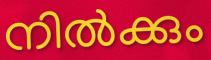
നിൽക്കും